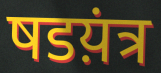
षडय़ंत्र